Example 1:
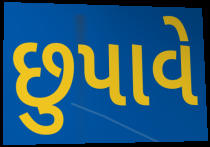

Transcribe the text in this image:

છુપાવે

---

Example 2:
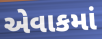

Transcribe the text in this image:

એવાકમાં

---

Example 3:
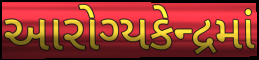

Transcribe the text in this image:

આરોગ્યકેન્દ્રમાં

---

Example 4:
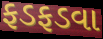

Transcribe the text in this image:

ફડફડવા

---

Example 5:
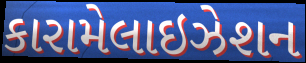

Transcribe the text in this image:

કારામેલાઇઝેશન